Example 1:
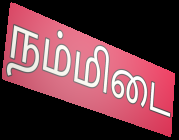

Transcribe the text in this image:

நம்மிடை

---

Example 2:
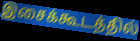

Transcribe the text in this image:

இசைக்கூடத்தில்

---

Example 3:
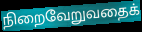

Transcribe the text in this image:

நிறைவேறுவதைக்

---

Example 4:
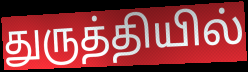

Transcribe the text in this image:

துருத்தியில்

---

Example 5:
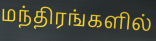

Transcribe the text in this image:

மந்திரங்களில்